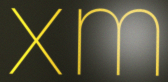
xm